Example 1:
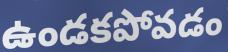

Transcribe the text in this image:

ఉండకపోవడం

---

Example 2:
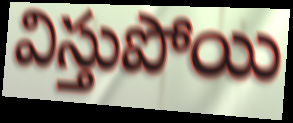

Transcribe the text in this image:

విస్తుపోయి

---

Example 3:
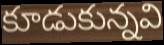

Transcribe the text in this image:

కూడుకున్నవి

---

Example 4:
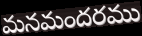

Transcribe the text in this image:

మనమందరము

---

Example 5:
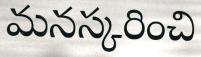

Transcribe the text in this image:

మనస్కరించి